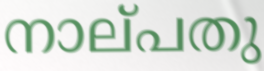
നാല്‌പതു